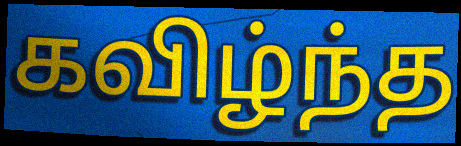
கவிழ்ந்த